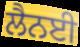
ਲੈਨਈ